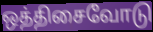
ஒத்திசைவோடு